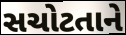
સચોટતાને